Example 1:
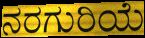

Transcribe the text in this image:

ನರಗುರಿಯೆ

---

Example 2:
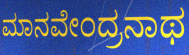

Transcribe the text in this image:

ಮಾನವೇಂದ್ರನಾಥ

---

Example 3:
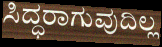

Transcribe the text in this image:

ಸಿದ್ಧರಾಗುವುದಿಲ್ಲ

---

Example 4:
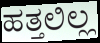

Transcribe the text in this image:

ಹತ್ತಲಿಲ್ಲ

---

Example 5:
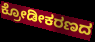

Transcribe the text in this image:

ಕ್ರೋಡೀಕರಣದ